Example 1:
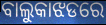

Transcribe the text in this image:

ବାଲୁକାଝଡରେ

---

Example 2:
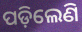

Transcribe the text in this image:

ପଡ଼ିଲେଣି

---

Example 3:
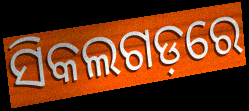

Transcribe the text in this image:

ସିକଲଗଡ଼ରେ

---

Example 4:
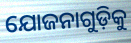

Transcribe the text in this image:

ଯୋଜନାଗୁଡ଼ିକୁ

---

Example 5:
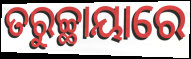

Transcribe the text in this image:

ତରୁଚ୍ଛାୟାରେ